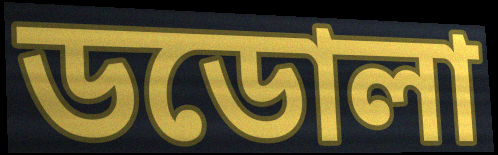
ডডোলা